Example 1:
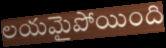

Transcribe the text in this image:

లయమైపోయింది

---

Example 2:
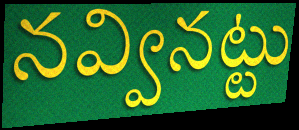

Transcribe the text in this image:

నవ్వినట్టు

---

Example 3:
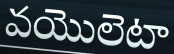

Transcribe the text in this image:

వయొలెటా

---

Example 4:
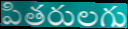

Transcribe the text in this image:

పితరులగు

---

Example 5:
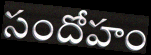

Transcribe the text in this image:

సందోహం